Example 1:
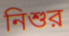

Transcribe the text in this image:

নিশুর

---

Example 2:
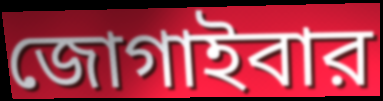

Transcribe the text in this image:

জোগাইবার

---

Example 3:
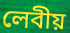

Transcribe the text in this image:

লেবীয়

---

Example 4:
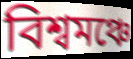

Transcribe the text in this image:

বিশ্বমঞ্চে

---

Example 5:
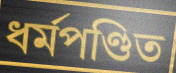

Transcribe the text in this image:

ধর্মপণ্ডিত